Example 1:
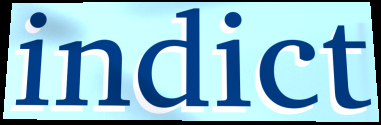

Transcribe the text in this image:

indict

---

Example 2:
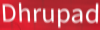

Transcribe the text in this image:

Dhrupad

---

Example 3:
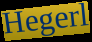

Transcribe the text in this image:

Hegerl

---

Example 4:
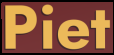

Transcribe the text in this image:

Piet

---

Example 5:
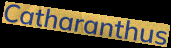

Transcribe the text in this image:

Catharanthus